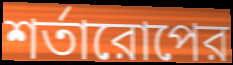
শর্তারোপের